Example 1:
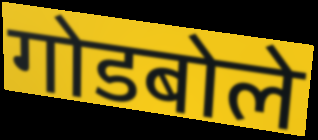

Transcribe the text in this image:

गोडबोले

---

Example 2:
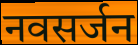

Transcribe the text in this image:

नवसर्जन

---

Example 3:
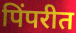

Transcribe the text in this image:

पिंपरीत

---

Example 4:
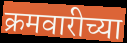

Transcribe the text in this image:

क्रमवारीच्या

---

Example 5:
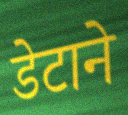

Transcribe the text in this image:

डेटाने